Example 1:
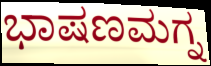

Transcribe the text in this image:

ಭಾಷಣಮಗ್ನ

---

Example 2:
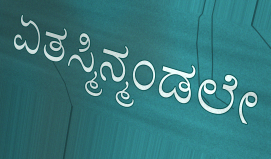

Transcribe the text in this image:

ಏತಸ್ಮಿನ್ಮಂಡಲೇ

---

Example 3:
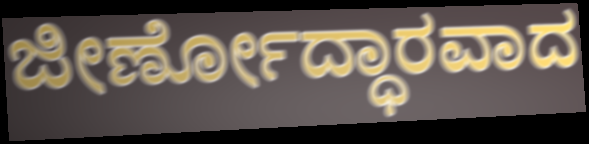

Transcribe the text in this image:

ಜೀರ್ಣೋದ್ಧಾರವಾದ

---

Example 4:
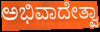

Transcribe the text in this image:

ಅಭಿವಾದೇತ್ವಾ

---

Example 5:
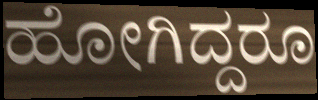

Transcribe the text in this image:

ಹೋಗಿದ್ದರೂ